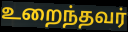
உறைந்தவர்